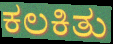
ಕಲಕಿತು